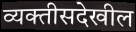
व्यक्तीसदेखील